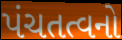
પંચતત્વનો